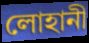
লোহানী